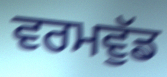
ਵਰਮਵੁੱਡ